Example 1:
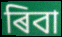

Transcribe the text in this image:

ৰিবা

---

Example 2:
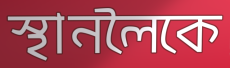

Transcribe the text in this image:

স্থানলৈকে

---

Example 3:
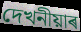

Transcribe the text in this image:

দেখনীয়াৰ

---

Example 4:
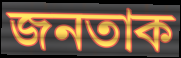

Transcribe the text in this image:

জনতাক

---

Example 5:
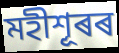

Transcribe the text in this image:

মহীশূৰৰ